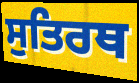
ਸੁਤਿਰਥ